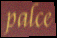
palce